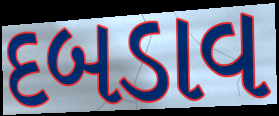
દબડાવ